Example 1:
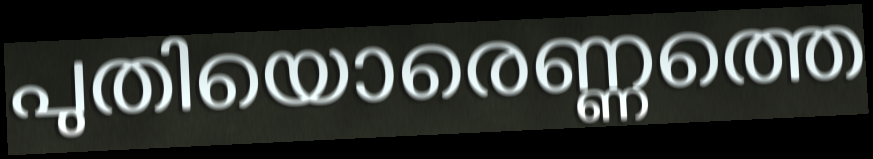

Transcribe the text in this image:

പുതിയൊരെണ്ണത്തെ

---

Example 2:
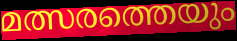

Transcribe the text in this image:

മത്സരത്തെയും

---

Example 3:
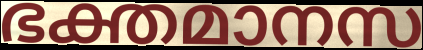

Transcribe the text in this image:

ഭക്തമാനസ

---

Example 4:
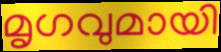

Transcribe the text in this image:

മൃഗവുമായി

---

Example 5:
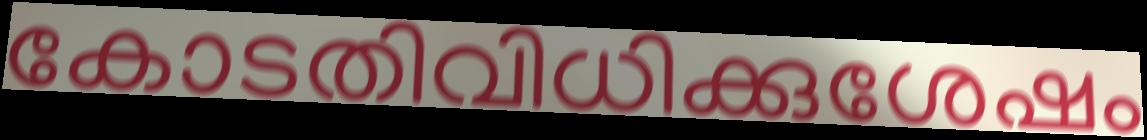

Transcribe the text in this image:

കോടതിവിധിക്കുശേഷം